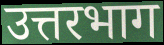
उत्तरभाग